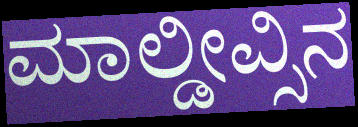
ಮಾಲ್ಡೀವ್ಸಿನ